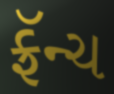
ફ્રૅન્ચ